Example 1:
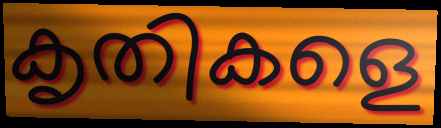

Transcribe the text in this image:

കൃതികളെ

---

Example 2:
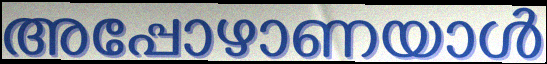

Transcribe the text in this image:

അപ്പോഴാണയാൾ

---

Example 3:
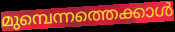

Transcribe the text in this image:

മുമ്പെന്നത്തെക്കാൾ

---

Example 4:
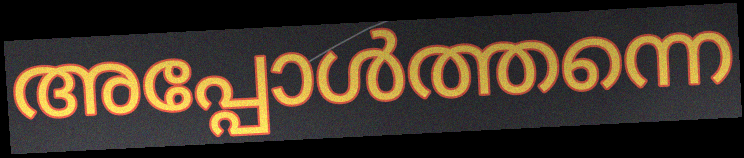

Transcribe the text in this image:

അപ്പോൾത്തന്നെ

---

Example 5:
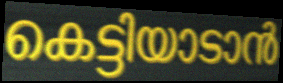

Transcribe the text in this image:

കെട്ടിയാടാൻ